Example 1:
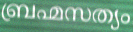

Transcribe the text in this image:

ബ്രഹ്മസത്യം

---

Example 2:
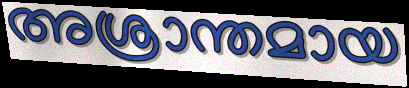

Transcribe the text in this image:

അശ്രാന്തമായ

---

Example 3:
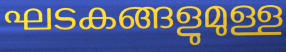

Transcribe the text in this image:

ഘടകങ്ങളുമുള്ള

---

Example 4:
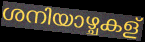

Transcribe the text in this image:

ശനിയാഴ്ചകള്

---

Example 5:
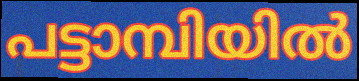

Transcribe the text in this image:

പട്ടാമ്പിയിൽ